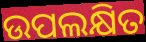
ଉପଲକ୍ଷିତ